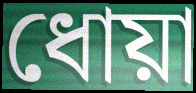
ধোয়া